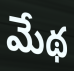
మేథ